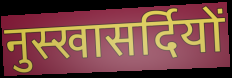
नुस्खासर्दियों